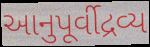
આનુપૂર્વીદ્રવ્ય